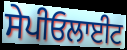
ਸੇਪੀਓਲਾਈਟ